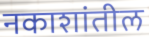
नकाशांतील